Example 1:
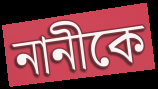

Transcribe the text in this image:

নানীকে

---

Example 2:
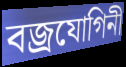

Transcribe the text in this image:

বজ্রযোগিনী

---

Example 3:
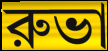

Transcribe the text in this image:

রুভা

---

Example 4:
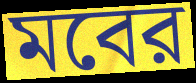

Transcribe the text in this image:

মবের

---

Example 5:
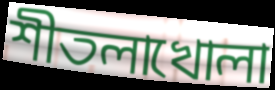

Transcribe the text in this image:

শীতলাখোলা